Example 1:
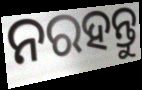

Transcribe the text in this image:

ନରହନ୍ତୁ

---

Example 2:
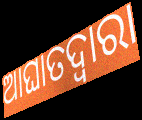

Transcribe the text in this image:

ଆଘାତଦ୍ୱାରା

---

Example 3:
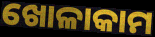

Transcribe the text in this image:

ଖୋଳାକାମ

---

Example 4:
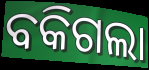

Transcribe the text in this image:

ବକିଗଲା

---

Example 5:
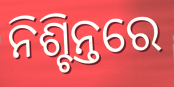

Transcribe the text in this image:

ନିଶ୍ଚିନ୍ତରେ